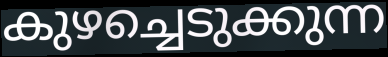
കുഴച്ചെടുക്കുന്ന